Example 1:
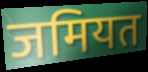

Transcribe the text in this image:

जमियत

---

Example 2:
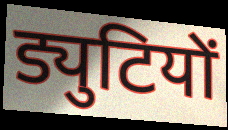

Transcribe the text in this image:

ड्युटियों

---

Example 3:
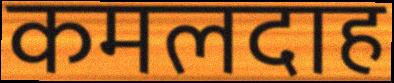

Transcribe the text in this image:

कमलदाह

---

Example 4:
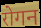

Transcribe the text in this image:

रोगन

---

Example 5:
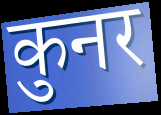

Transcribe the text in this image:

कुनर